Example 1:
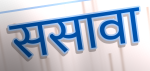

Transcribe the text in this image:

ससावा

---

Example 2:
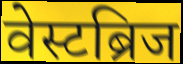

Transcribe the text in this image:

वेस्टब्रिज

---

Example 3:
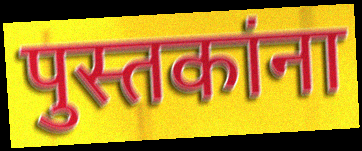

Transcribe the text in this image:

पुस्तकांना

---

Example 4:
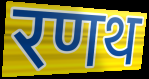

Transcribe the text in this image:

रणथ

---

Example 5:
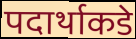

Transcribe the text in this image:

पदार्थाकडे